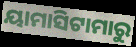
ୟାମାସିଟାମାରୁ